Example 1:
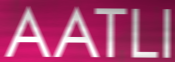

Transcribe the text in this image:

AATLI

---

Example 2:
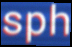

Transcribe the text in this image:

sph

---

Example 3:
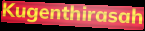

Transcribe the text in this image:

Kugenthirasah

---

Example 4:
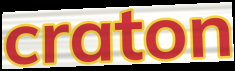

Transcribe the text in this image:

craton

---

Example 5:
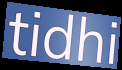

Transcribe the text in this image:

tidhi